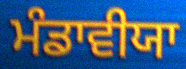
ਮੰਡਾਵੀਯਾ